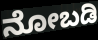
ನೋಬಡಿ